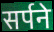
सर्पने